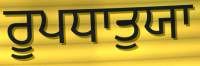
ਰੂਪਧਾਤੁਯਾ